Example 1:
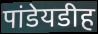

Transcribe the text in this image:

पांडेयडीह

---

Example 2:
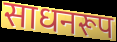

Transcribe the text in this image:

साधनरूप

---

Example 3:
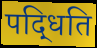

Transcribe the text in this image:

पद्धिति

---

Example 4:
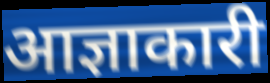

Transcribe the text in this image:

आज्ञाकारी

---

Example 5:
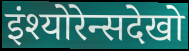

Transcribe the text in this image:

इंश्योरेन्सदेखो